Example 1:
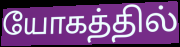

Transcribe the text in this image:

யோகத்தில்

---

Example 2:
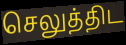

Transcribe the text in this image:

செலுத்திட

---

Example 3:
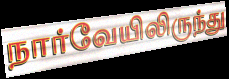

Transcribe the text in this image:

நார்வேயிலிருந்து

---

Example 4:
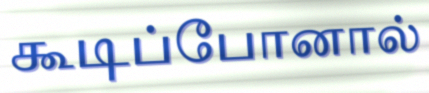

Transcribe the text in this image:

கூடிப்போனால்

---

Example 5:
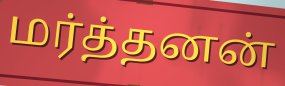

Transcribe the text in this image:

மர்த்தனன்